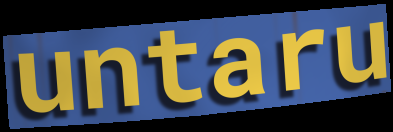
untaru